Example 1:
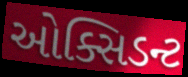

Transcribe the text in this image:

ઓક્સિડન્ટ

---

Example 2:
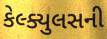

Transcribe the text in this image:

કેલ્ક્યુલસની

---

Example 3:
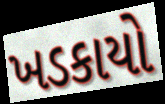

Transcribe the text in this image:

ખડકાયો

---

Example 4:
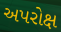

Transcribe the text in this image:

અપરોક્ષ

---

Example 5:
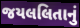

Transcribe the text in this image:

જયલલિતાનું